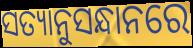
ସତ୍ୟାନୁସନ୍ଧାନରେ